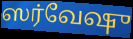
ஸர்வேஷு